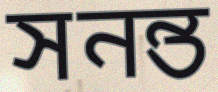
সনন্ত